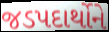
જડપદાર્થોને